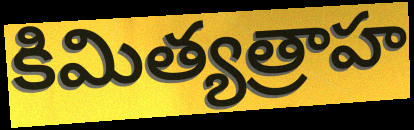
కిమిత్యత్రాహ